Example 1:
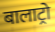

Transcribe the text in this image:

बालाट्रो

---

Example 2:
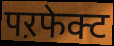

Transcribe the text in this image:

पऱफेक्ट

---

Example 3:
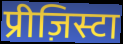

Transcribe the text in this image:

प्रीज़िस्टा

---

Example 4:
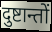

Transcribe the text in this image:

दुष्टान्तों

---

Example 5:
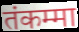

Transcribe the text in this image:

तंकम्मा